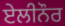
ਏਲੀਨੌਰ